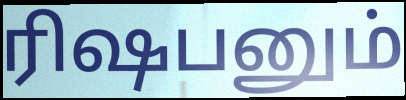
ரிஷபனும்